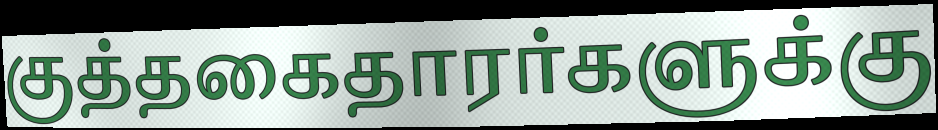
குத்தகைதாரர்களுக்கு